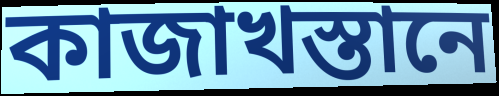
কাজাখস্তানে